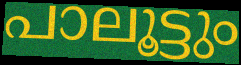
പാലൂട്ടും